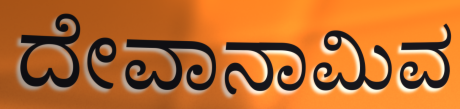
ದೇವಾನಾಮಿವ